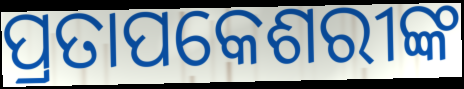
ପ୍ରତାପକେଶରୀଙ୍କ